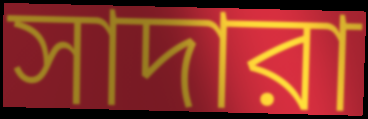
সাদারা